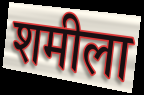
शमीला